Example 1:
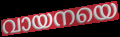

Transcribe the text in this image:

വായനയെ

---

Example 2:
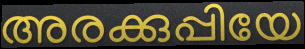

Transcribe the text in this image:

അരക്കുപ്പിയേ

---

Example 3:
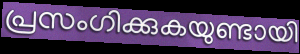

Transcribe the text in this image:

പ്രസംഗിക്കുകയുണ്ടായി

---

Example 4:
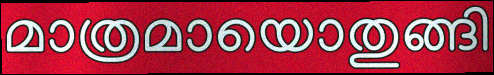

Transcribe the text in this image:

മാത്രമായൊതുങ്ങി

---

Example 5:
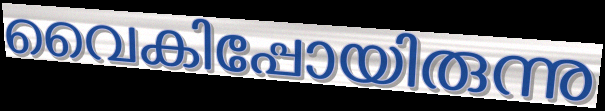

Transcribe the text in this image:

വൈകിപ്പോയിരുന്നു